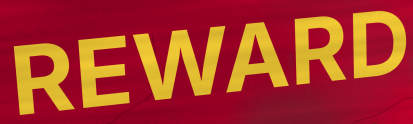
REWARD